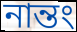
নান্তং